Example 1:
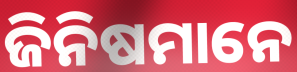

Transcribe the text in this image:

ଜିନିଷମାନେ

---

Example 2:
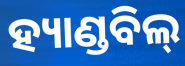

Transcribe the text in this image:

ହ୍ୟାଣ୍ଡବିଲ୍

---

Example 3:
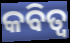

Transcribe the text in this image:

କବିତ୍ବ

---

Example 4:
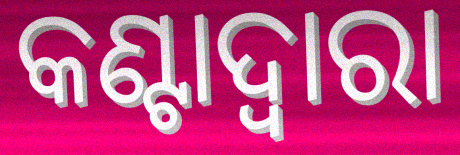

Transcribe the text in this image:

କଣ୍ଟାଦ୍ୱାରା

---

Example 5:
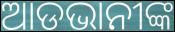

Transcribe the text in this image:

ଆଡଭାନୀଙ୍କ